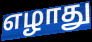
எழாது